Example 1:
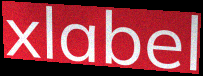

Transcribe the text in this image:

xlabel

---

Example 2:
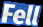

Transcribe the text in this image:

Fell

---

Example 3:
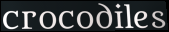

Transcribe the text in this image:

crocodiles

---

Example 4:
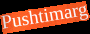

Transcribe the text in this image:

Pushtimarg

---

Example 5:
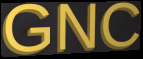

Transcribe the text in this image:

GNC